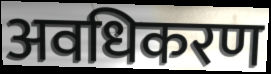
अवधिकरण